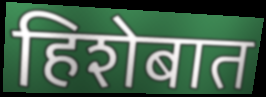
हिशेबात